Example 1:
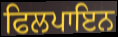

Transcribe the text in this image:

ਫਿਲਪਾਇਨ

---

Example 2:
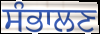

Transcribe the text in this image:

ਸੰਭਾਲਣ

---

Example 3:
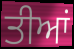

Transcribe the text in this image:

ਤੀਆਂ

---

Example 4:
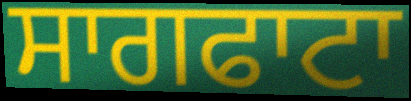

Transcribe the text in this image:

ਸਾਗਫਾਟਾ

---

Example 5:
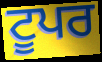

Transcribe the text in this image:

ਟੂਪਰ